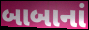
બાબાનાં